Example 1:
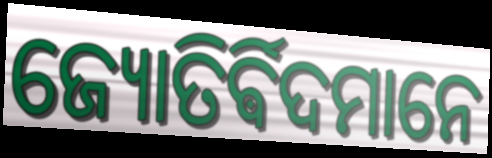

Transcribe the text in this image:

ଜ୍ୟୋତିର୍ଵିଦମାନେ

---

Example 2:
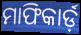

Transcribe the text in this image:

ମାଫିକାର୍ଡ଼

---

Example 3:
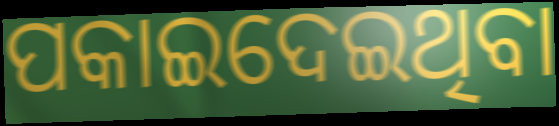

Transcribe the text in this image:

ପକାଇଦେଇଥିବା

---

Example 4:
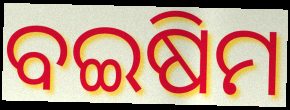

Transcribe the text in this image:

ବଇଷିମ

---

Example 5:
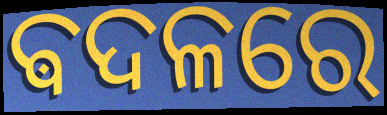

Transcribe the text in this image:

ଵଦଳରେ